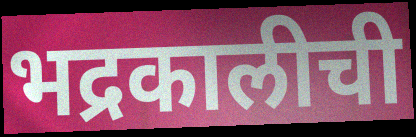
भद्रकालीची